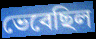
ভেবেছিল